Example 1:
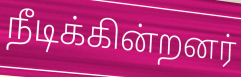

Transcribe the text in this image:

நீடிக்கின்றனர்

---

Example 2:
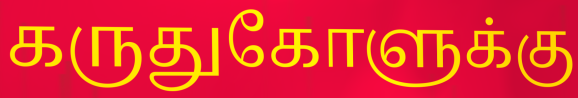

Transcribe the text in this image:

கருதுகோளுக்கு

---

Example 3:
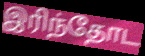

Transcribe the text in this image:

இரிந்தோட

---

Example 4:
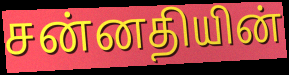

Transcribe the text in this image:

சன்னதியின்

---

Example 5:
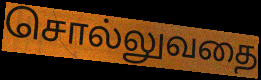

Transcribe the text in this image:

சொல்லுவதை